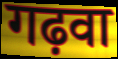
गढ़वा